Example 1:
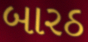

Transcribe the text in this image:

બારઠ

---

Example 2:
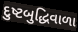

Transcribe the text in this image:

દુષ્ટબુદ્ધિવાળા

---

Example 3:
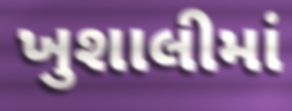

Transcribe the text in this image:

ખુશાલીમાં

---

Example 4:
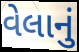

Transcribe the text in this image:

વેલાનું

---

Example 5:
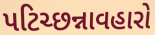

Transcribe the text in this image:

પટિચ્છન્નાવહારો